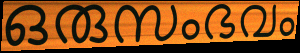
ഒരുസംഭവം